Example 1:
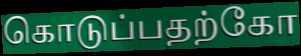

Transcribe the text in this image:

கொடுப்பதற்கோ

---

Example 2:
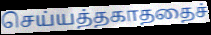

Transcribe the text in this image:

செய்யத்தகாததைச்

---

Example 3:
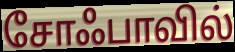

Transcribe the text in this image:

சோஃபாவில்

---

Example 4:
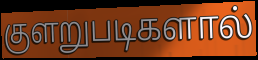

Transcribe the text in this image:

குளறுபடிகளால்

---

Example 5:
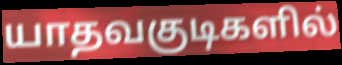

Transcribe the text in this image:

யாதவகுடிகளில்